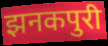
झनकपुरी